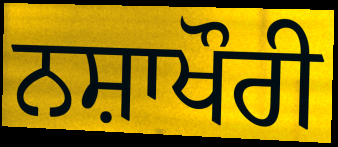
ਨਸ਼ਾਖੌਰੀ